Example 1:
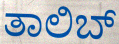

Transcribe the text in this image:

ತಾಲಿಬ್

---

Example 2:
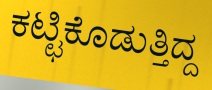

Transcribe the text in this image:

ಕಟ್ಟಿಕೊಡುತ್ತಿದ್ದ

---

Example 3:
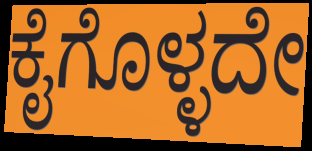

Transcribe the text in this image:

ಕೈಗೊಳ್ಳದೇ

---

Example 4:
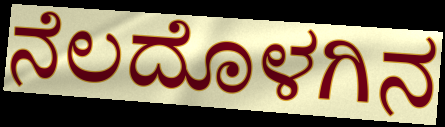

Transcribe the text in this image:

ನೆಲದೊಳಗಿನ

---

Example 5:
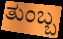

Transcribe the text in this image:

ತುಂಬ್ಬ